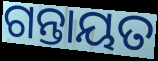
ଗନ୍ତାୟତ